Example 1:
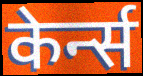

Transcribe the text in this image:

केर्न्स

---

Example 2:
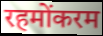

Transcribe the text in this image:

रहमोंकरम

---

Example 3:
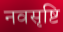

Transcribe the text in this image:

नवसृष्टि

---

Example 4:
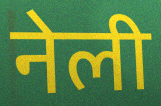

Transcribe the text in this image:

नेली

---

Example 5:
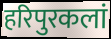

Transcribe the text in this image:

हरिपुरकलां